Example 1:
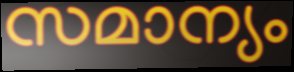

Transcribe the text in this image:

സമാന്യം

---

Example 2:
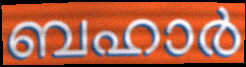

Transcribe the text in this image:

ബഹാർ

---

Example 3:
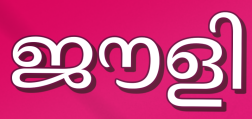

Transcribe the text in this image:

ജൗളി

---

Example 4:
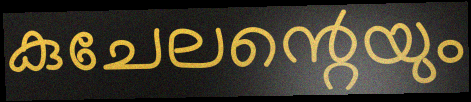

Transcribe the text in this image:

കുചേലന്റെയും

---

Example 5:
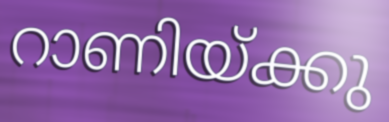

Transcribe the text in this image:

റാണിയ്ക്കു